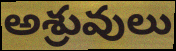
అశ్రువులు